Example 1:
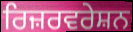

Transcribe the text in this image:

ਰਿਜ਼ਰਵਰੇਸ਼ਨ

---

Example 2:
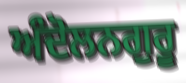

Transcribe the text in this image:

ਅੰਦੋਲਨਗੁਰੂ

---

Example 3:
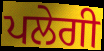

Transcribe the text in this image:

ਪਲੇਗੀ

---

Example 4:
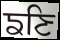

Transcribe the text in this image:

ਙਣਿ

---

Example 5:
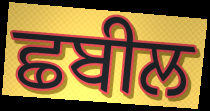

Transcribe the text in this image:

ਛਬੀਲ